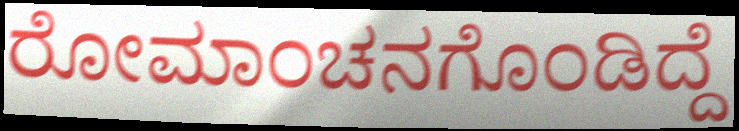
ರೋಮಾಂಚನಗೊಂಡಿದ್ದೆ